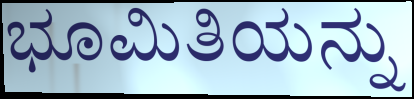
ಭೂಮಿತಿಯನ್ನು